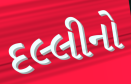
દલ્લીનો